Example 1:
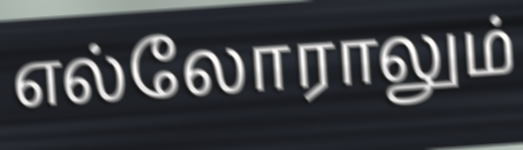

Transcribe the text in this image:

எல்லோராலும்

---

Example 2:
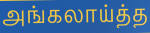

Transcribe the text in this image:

அங்கலாய்த்த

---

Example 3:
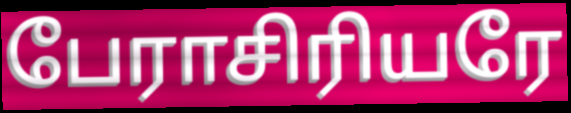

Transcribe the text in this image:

பேராசிரியரே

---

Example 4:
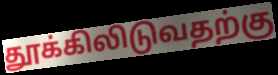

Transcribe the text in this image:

தூக்கிலிடுவதற்கு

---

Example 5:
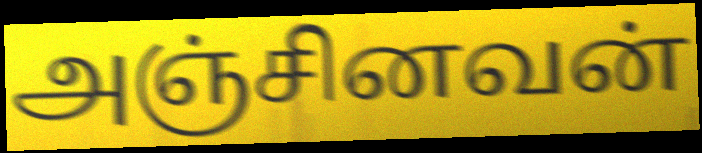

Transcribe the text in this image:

அஞ்சினவன்